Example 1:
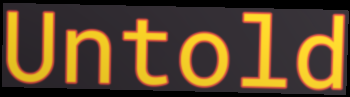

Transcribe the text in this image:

Untold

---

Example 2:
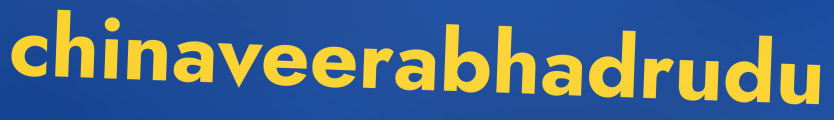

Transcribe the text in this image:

chinaveerabhadrudu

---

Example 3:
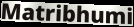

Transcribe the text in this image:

Matribhumi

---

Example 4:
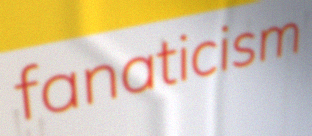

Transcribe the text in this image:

fanaticism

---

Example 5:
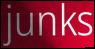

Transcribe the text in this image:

junks